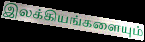
இலக்கியங்களையும்